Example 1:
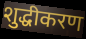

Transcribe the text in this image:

शुद्धीकरण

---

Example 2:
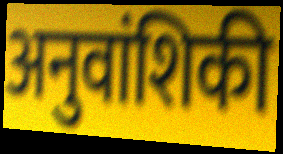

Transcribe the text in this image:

अनुवांशिकी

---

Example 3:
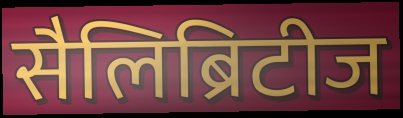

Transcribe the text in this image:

सैलिब्रिटीज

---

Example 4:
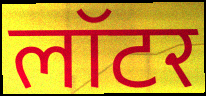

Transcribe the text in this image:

लॉटर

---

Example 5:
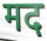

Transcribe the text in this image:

मद